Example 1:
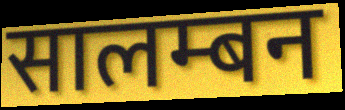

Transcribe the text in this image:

सालम्बन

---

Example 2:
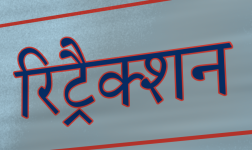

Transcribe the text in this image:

रिट्रैक्शन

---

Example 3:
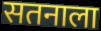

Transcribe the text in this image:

सतनाला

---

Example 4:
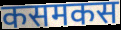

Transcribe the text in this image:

कसमकस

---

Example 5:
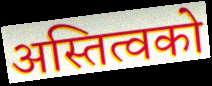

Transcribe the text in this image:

अस्तित्वको